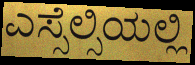
ಎಸ್ಸೆಲ್ಸಿಯಲ್ಲಿ